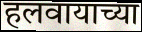
हलवायाच्या